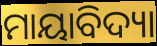
ମାୟାବିଦ୍ୟା